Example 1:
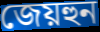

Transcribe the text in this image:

জেয়হুন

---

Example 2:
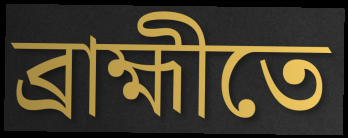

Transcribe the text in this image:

ব্রাহ্মীতে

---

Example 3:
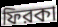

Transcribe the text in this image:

ফিরকা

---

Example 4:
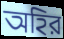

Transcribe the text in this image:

অহির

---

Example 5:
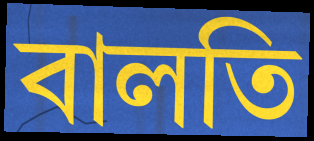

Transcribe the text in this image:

বালতি